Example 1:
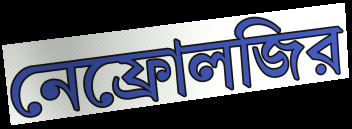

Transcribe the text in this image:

নেফ্রোলজির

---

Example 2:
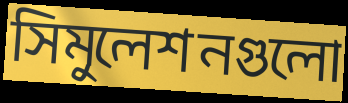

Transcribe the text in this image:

সিমুলেশনগুলো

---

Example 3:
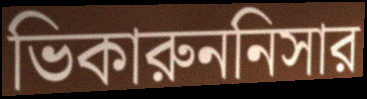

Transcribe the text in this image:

ভিকারুননিসার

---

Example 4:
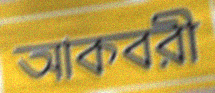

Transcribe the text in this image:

আকবরী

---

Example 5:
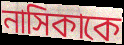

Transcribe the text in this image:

নাসিকাকে